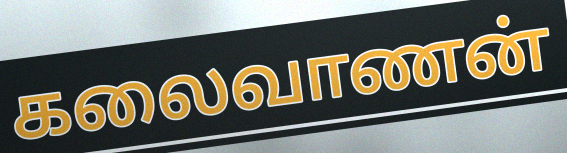
கலைவாணன்